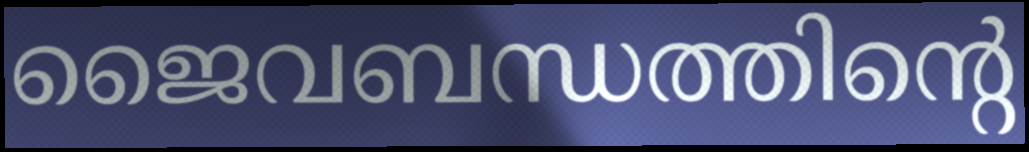
ജൈവബന്ധത്തിന്റെ